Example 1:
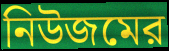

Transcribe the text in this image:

নিউজমের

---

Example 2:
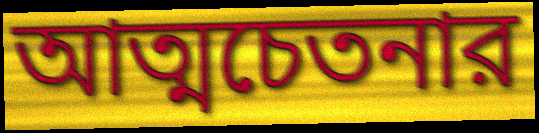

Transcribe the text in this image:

আত্মচেতনার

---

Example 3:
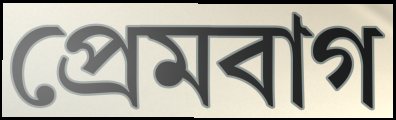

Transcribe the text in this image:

প্রেমবাগ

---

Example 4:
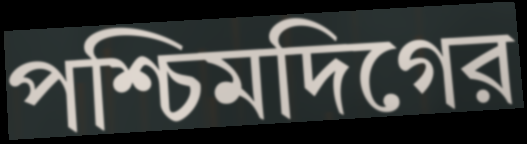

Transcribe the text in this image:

পশ্চিমদিগের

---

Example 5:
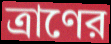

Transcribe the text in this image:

ত্রাণের